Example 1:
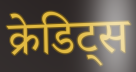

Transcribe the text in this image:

क्रेडिट्स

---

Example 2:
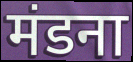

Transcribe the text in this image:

मंडना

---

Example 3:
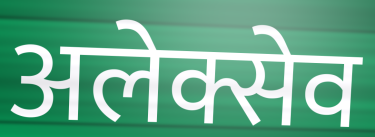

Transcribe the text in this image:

अलेक्सेव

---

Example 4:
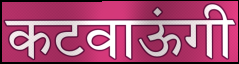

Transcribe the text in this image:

कटवाऊंगी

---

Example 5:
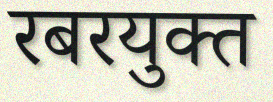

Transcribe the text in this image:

रबरयुक्त